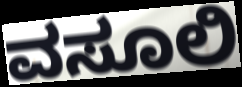
ವಸೂಲಿ